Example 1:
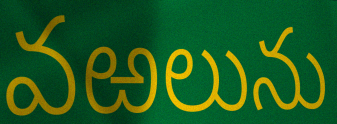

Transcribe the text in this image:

వఱలును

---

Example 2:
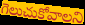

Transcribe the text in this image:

గెలుచుకోవాలని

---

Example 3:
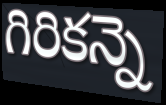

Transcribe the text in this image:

గిరికన్నె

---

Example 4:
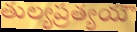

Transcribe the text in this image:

తుల్యప్రత్యయౌ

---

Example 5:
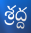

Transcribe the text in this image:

శ్రద్ద